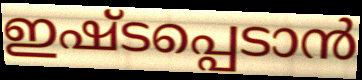
ഇഷ്ടപ്പെടാൻ